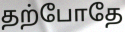
தற்போதே